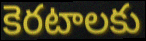
కెరటాలకు